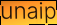
unaip